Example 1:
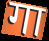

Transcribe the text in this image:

गा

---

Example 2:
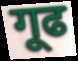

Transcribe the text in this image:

गूढ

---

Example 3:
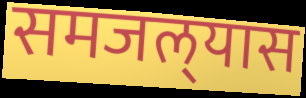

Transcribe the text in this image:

समजल्यास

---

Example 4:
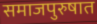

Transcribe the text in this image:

समाजपुरुषात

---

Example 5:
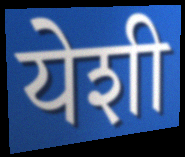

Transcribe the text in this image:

येशी